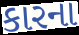
કારના